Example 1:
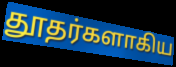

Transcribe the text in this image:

தூதர்களாகிய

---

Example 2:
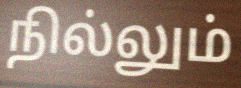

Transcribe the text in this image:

நில்லும்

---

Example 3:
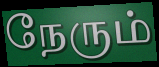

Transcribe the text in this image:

நேரும்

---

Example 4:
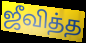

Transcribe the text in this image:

ஜீவித்த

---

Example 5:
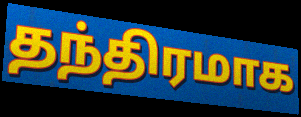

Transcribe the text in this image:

தந்திரமாக